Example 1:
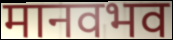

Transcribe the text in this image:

मानवभव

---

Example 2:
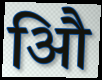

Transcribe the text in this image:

औि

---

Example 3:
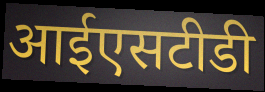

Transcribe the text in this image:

आईएसटीडी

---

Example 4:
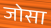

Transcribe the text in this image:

जोसा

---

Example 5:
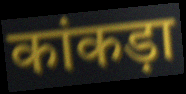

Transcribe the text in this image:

कांकड़ा